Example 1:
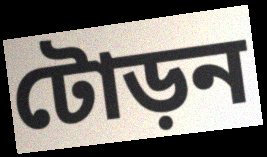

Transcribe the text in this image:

টোড়ন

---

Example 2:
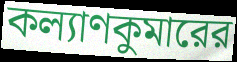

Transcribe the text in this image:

কল্যাণকুমারের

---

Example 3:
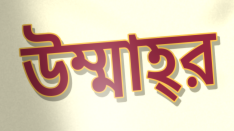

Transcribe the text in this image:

উম্মাহ্‌র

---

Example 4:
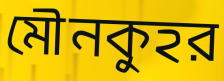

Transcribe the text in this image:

মৌনকুহর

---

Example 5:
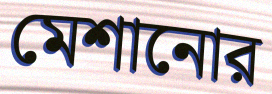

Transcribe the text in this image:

মেশানোর